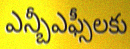
ఎన్బీఎఫ్సీలకు